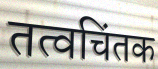
तत्वचिंतक